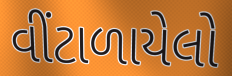
વીંટાળાયેલો